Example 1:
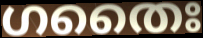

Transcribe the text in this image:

ഗതൈഃ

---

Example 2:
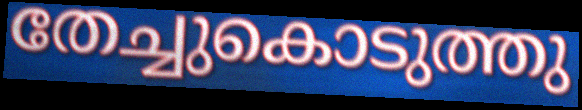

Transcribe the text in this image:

തേച്ചുകൊടുത്തു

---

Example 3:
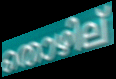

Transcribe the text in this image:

തൊഴില്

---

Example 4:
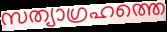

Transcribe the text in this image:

സത്യാഗ്രഹത്തെ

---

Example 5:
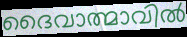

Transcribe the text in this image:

ദൈവാത്മാവിൽ